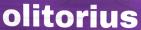
olitorius